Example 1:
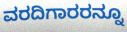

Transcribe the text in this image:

ವರದಿಗಾರರನ್ನೂ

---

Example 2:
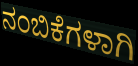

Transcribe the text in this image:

ನಂಬಿಕೆಗಳಾಗಿ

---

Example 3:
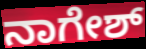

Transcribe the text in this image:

ನಾಗೇಶ್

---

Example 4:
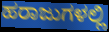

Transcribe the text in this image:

ಹರಾಜುಗಳಲ್ಲಿ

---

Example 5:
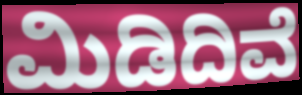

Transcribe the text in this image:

ಮಿಡಿದಿವೆ